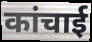
कांचाई